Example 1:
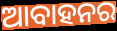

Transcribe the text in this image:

ଆବାହନର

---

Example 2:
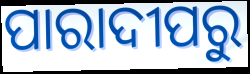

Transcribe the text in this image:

ପାରାଦୀପରୁ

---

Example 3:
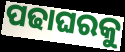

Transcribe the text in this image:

ପଢାଘରକୁ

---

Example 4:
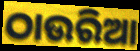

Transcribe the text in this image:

ଠାଉରିଆ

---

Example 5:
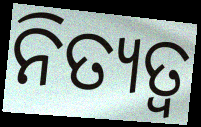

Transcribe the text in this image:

ନିତ୍ୟତ୍ୱ